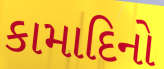
કામાદિનો